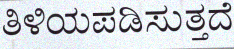
ತಿಳಿಯಪಡಿಸುತ್ತದೆ